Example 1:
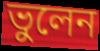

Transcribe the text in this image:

ভুলেন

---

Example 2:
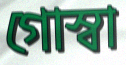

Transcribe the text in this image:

গোস্বা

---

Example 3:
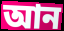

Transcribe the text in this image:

আন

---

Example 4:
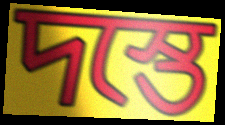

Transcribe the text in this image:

দস্তে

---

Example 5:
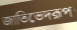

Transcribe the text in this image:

জাতিভেদরূপ